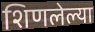
शिणलेल्या